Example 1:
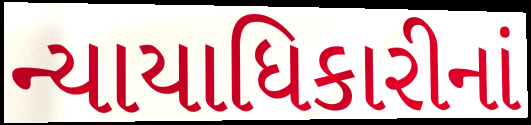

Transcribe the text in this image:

ન્યાયાધિકારીનાં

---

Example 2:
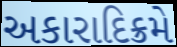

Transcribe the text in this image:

અકારાદિક્રમે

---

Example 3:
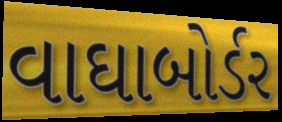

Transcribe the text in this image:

વાઘાબોર્ડર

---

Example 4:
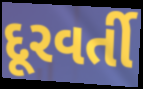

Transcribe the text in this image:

દૂરવર્તી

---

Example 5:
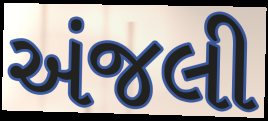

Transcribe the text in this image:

અંજલી